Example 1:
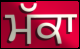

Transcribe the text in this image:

ਮੱਕਾ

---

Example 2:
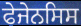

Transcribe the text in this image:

ਫੇਜੇਨਸਿਸ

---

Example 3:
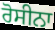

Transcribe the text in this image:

ਰੋਸੀਨਾ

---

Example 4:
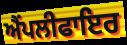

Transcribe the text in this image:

ਐਂਪਲੀਫਾਇਰ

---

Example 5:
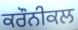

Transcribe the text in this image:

ਕਰੌਨੀਕਲ